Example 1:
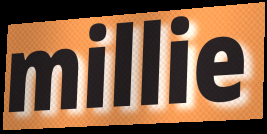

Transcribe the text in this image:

millie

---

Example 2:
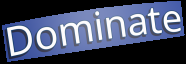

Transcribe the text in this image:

Dominate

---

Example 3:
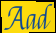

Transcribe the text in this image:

Aad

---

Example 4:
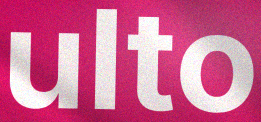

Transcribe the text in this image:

ulto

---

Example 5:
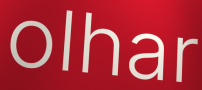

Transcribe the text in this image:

olhar